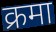
क्रमा